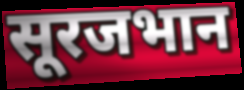
सूरजभान